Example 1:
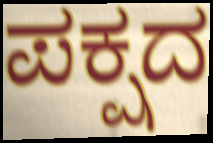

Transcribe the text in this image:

ಪಕ್ಷದ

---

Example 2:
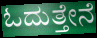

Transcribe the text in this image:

ಓದುತ್ತೇನೆ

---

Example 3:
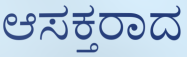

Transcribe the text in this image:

ಆಸಕ್ತರಾದ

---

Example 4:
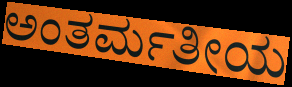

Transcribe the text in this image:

ಅಂತರ್ಮತೀಯ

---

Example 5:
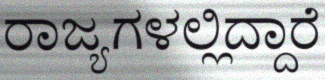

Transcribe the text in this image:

ರಾಜ್ಯಗಳಲ್ಲಿದ್ದಾರೆ